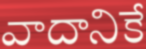
వాదానికే